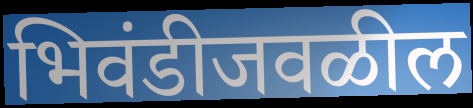
भिवंडीजवळील